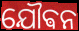
ଯୌଵନ